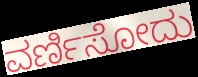
ವರ್ಣಿಸೋದು